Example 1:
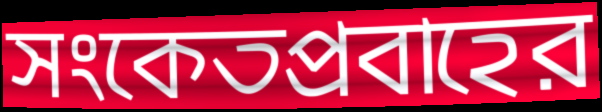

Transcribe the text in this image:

সংকেতপ্রবাহের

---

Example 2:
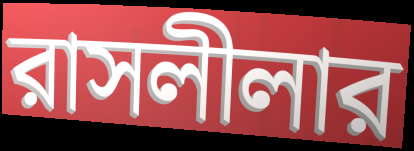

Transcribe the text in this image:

রাসলীলার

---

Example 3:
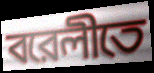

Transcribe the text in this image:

বরেলীতে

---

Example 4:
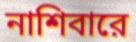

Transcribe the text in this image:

নাশিবারে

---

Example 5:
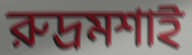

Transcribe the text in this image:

রুদ্রমশাই